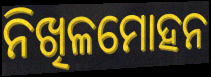
ନିଖିଳମୋହନ